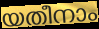
യതീനാം